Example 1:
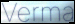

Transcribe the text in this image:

Verma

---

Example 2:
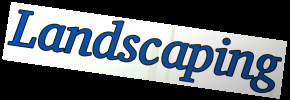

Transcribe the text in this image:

Landscaping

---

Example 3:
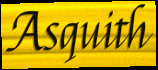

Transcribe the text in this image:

Asquith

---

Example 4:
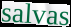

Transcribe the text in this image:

salvas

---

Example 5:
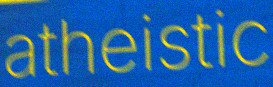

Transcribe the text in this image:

atheistic